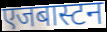
एजबास्टन